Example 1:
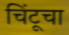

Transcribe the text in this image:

चिंटूचा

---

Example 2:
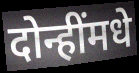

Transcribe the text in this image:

दोन्हींमधे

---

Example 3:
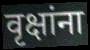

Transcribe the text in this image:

वृक्षांना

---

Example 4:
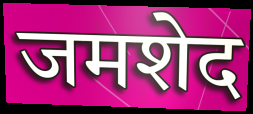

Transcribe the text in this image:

जमशेद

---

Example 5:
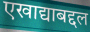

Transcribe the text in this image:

एखाद्याबद्दल